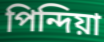
পিন্দিয়া